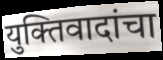
युक्तिवादांचा